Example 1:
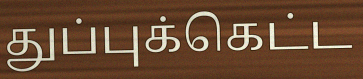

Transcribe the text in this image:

துப்புக்கெட்ட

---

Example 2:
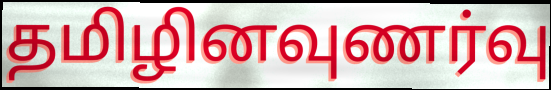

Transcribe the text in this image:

தமிழினவுணர்வு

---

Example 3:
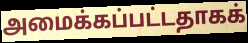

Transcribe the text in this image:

அமைக்கப்பட்டதாகக்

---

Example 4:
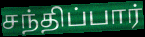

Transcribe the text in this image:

சந்திப்பார்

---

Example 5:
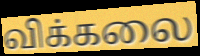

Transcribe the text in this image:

விக்கலை